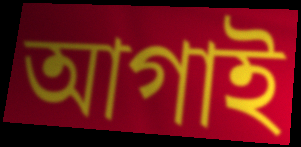
আগাই